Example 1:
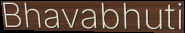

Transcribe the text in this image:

Bhavabhuti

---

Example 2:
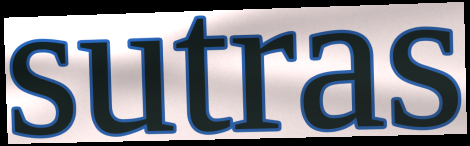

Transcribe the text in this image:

sutras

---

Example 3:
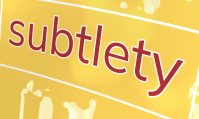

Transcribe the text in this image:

subtlety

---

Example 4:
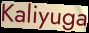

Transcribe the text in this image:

Kaliyuga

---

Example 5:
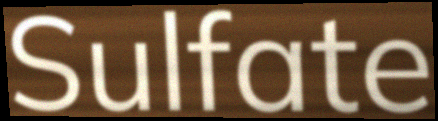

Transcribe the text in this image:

Sulfate